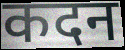
कदन